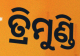
ତ୍ରିମୁଣ୍ଡି